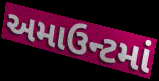
અમાઉન્ટમાં